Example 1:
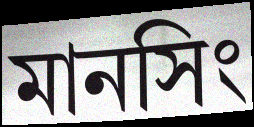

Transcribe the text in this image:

মানসিং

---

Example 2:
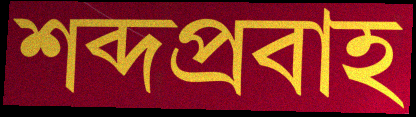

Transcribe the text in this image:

শব্দপ্রবাহ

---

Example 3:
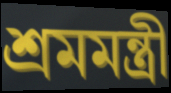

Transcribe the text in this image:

শ্রমমন্ত্রী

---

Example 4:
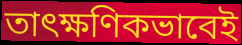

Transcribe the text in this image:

তাৎক্ষণিকভাবেই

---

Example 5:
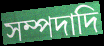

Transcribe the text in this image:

সম্পদাদি